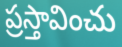
ప్రస్తావించు